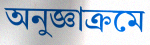
অনুজ্ঞাক্রমে